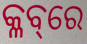
କ୍ଳବ୍‌ରେ